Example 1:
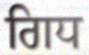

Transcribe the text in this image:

ਗਿਧ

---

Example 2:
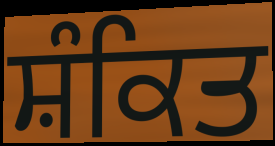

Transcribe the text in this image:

ਸ਼ੰਕਿਤ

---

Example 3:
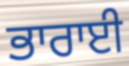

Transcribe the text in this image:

ਭਾਰਾਈ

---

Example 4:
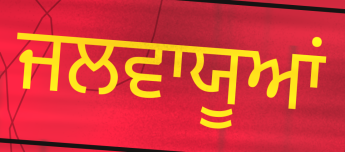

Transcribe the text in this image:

ਜਲਵਾਯੂਆਂ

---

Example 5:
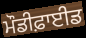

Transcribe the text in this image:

ਮੌਡੀਫ਼ਾਈਡ